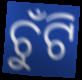
ଚୁଁଟି